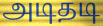
அடிதடி